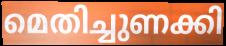
മെതിച്ചുണക്കി